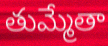
తుమ్మేతా